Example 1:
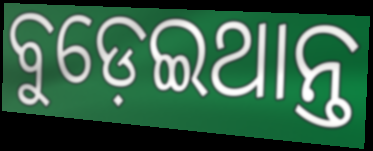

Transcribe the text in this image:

ବୁଡ଼େଇଥାନ୍ତ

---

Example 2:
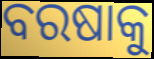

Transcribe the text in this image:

ବରଷାକୁ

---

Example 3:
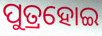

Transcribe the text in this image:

ପୁତ୍ରହୋଇ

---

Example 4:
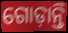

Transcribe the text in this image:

ଗୋଡ଼ାନ୍ତି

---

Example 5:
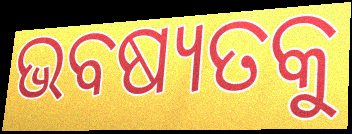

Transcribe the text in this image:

ଭବଷ୍ୟତକୁ